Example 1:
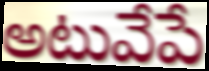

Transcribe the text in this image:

అటువేపే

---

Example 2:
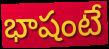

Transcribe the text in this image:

భాషంటే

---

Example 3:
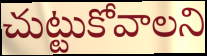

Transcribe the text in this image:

చుట్టుకోవాలని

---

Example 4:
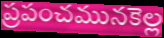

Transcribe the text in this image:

ప్రపంచమునకెల్ల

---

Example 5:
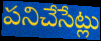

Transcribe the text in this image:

పనిచేసేట్లు